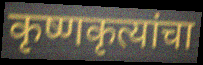
कृष्णकृत्यांचा